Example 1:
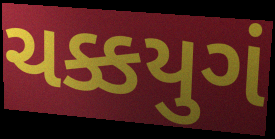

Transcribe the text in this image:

ચક્કયુગં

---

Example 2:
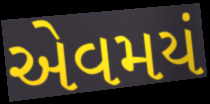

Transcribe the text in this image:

એવમયં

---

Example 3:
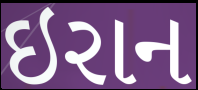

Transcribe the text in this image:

ઇરાન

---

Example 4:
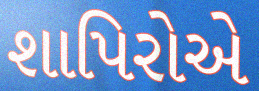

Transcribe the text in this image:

શાપિરોએ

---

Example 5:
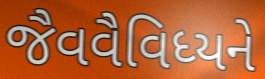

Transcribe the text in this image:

જૈવવૈવિધ્યને